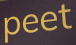
peet